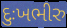
દુઃખભીરુ